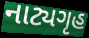
નાટ્યગૃહ